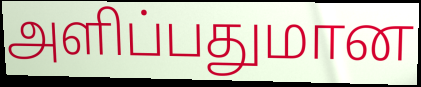
அளிப்பதுமான